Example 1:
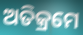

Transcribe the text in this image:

ଅତିକ୍ରମେ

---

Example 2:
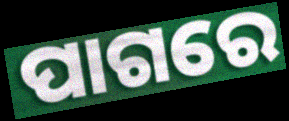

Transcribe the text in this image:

ପାଗରେ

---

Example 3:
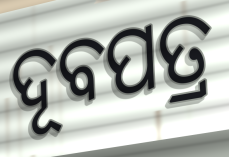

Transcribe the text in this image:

ଦୂବପତ୍ର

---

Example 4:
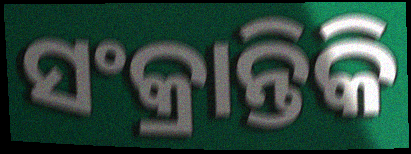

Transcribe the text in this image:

ସଂକ୍ରାନ୍ତିକି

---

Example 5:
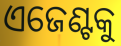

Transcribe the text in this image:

ଏଜେଣ୍ଟକୁ